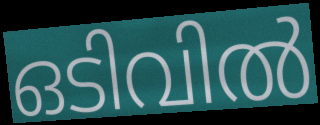
ഒടിവിൽ